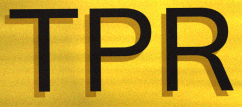
TPR